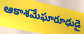
ఆకాశమేఘారూఢుడై